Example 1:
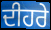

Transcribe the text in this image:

ਦੀਹਰੇ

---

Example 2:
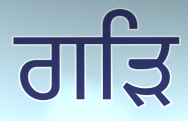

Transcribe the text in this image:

ਗੜਿ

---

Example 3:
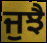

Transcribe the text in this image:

ਜੁਝੈ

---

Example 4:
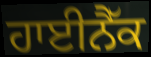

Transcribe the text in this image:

ਹਾਈਨੈੱਕ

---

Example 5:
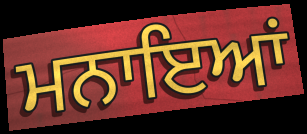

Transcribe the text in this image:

ਮਨਾਇਆਂ